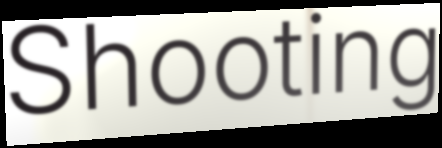
Shooting